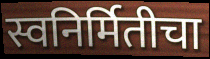
स्वनिर्मितीचा